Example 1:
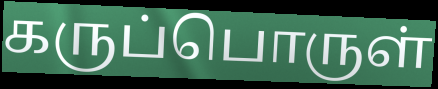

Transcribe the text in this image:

கருப்பொருள்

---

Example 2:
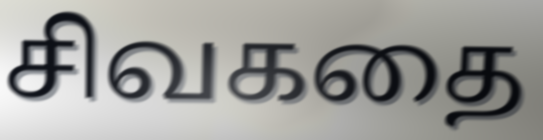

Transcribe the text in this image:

சிவகதை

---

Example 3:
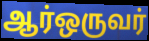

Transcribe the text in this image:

ஆர்ஒருவர்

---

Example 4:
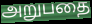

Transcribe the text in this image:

அறுபதை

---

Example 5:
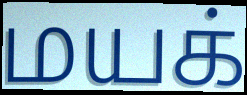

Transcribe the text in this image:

மயக்